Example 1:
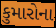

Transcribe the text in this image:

કુમારોના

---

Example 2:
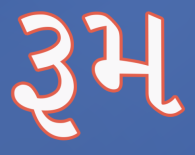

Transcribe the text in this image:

રૂમ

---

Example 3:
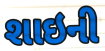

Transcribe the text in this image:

શાઇની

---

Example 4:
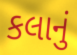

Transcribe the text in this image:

કલાનું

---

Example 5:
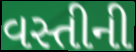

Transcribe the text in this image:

વસ્તીની